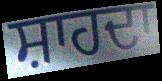
ਸ਼ਾਹਦਾ